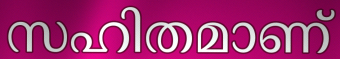
സഹിതമാണ്